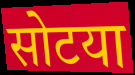
सोटया